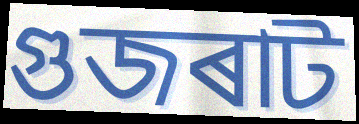
গুজৰাট